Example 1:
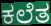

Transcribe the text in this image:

ಕಲೆತ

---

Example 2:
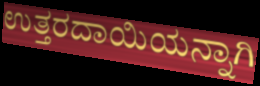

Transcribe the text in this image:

ಉತ್ತರದಾಯಿಯನ್ನಾಗಿ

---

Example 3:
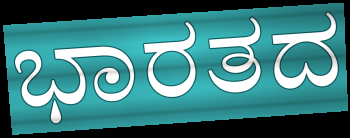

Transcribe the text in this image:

ಭಾರತದ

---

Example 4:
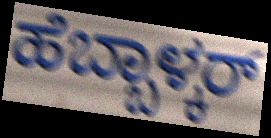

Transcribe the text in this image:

ಹೆಬ್ಬಾಳ್ಕರ್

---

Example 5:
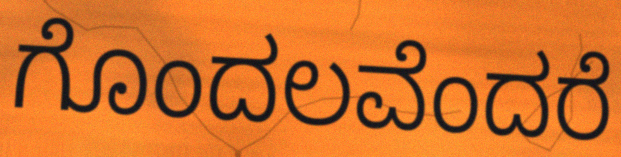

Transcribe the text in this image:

ಗೊಂದಲವೆಂದರೆ